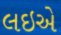
લઇએ